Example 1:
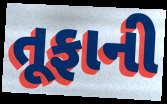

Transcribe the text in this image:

તૂફાની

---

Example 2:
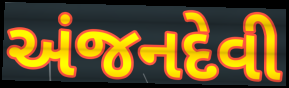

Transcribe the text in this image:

અંજનદેવી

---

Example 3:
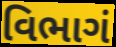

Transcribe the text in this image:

વિભાગં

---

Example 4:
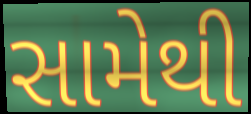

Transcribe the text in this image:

સામેથી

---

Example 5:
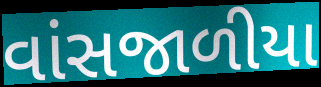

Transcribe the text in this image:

વાંસજાળીયા